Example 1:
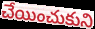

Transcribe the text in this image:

చేయించుకుని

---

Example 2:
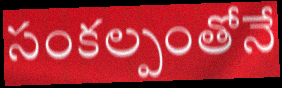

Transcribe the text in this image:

సంకల్పంతోనే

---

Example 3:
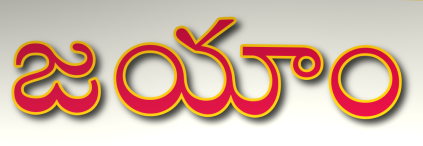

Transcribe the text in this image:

జయాం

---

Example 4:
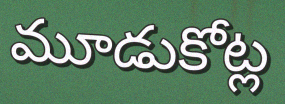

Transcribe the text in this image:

మూడుకోట్ల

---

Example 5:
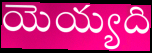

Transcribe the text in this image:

యెయ్యది